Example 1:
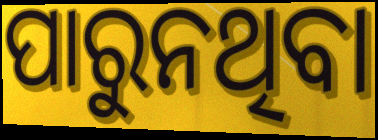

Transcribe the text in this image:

ପାରୁନଥିବା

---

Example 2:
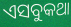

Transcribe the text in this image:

ଏସବୁକଥା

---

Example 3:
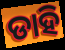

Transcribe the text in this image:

ଡାହି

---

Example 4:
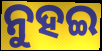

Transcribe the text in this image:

ନୁହଇ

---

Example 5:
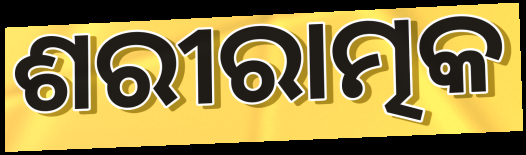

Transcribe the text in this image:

ଶରୀରାତ୍ମକ